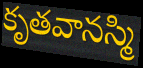
కృతవానస్మి